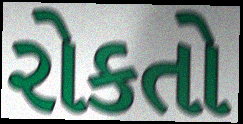
રોકતો